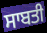
ਸਾਬਤੀ